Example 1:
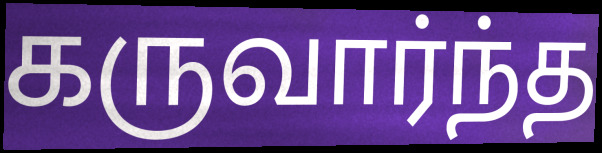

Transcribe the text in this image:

கருவார்ந்த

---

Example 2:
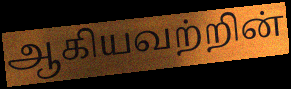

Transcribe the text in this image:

ஆகியவற்றின்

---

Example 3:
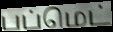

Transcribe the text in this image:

பப்மெட்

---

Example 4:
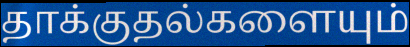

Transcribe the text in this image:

தாக்குதல்களையும்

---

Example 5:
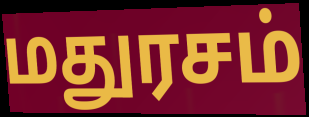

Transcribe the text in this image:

மதுரசம்